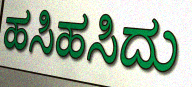
ಹಸಿಹಸಿದು